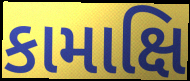
કામાક્ષિ